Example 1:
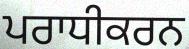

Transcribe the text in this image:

ਪਰਾਧੀਕਰਨ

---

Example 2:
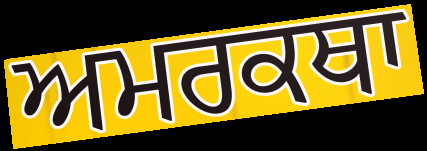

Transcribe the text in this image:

ਅਮਰਕਥਾ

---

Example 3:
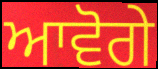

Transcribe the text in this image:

ਆਵੋਗੇ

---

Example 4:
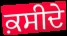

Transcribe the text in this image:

ਕ਼ਸੀਦੇ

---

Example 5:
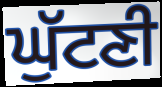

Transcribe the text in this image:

ਘੁੱਟਣੀ